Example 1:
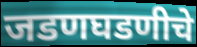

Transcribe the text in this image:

जडणघडणीचे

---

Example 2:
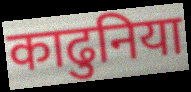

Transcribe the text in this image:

काढुनिया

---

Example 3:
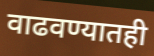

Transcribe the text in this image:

वाढवण्यातही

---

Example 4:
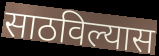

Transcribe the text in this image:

साठविल्यास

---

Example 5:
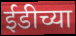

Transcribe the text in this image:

ईडीच्या